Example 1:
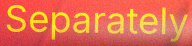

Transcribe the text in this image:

Separately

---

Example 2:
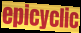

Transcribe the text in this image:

epicyclic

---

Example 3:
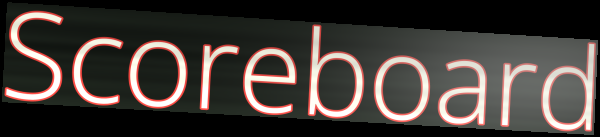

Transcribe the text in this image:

Scoreboard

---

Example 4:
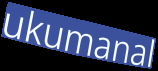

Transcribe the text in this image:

ukumanal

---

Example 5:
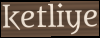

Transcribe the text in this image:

ketliye